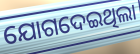
ଯୋଗଦେଇଥିଲା